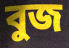
বুজ